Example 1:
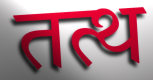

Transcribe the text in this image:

तत्थ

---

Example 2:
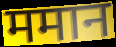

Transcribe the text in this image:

ममान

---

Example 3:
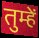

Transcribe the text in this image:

तुम्‍हें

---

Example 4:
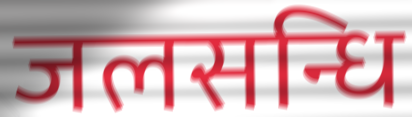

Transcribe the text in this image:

जलसन्धि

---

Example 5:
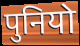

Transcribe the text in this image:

पुनियो